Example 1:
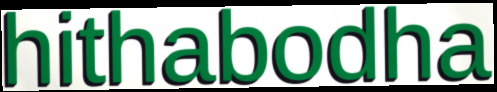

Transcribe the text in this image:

hithabodha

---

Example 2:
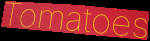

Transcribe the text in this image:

Tomatoes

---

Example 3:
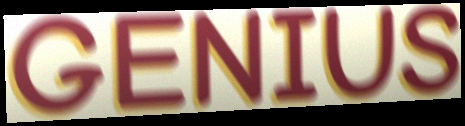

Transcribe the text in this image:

GENIUS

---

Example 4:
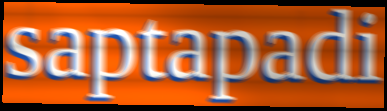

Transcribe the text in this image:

saptapadi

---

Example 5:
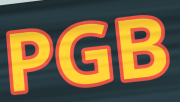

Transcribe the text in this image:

PGB